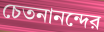
চেতনানন্দের